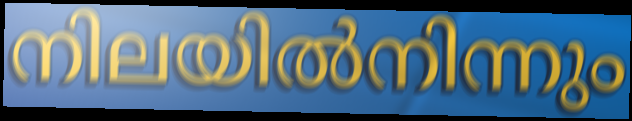
നിലയിൽനിന്നും